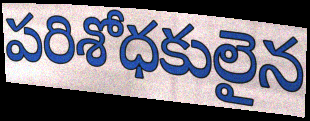
పరిశోధకులైన